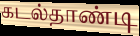
கடல்தாண்டி